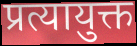
प्रत्यायुक्त